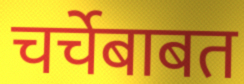
चर्चेबाबत